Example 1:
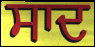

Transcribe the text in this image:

ਸਾਦ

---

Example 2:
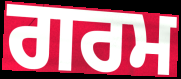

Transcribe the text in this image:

ਗਰਮ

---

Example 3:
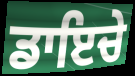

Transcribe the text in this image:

ਡਾਇਚੇ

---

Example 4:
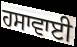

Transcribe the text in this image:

ਹਸਾਵਾਈ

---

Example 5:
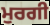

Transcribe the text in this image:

ਮੁਰਗੀ